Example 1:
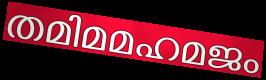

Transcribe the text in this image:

തമിമമഹമജം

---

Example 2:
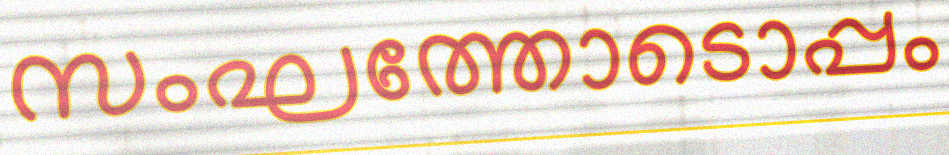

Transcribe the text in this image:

സംഘത്തോടൊപ്പം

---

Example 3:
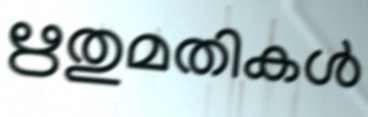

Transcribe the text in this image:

ഋതുമതികൾ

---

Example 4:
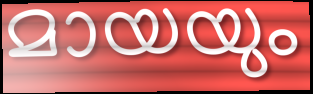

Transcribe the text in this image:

മായയും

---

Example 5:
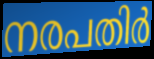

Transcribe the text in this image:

നരപതിർ